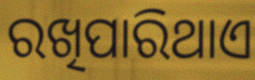
ରଖିପାରିଥାଏ